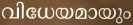
വിധേയമായും